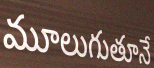
మూలుగుతూనే